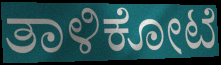
ತಾಳಿಕೋಟೆ